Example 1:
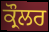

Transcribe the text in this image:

ਕ੍ਰੌਲਰ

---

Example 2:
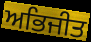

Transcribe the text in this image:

ਅਭਿਜੀਤ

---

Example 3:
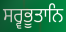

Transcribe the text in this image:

ਸਰ੍ਵਭੂਤਾਨਿ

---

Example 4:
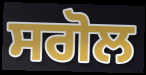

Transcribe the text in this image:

ਸਗੋਲ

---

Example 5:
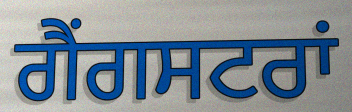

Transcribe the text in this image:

ਗੈਂਗਸਟਰਾਂ